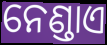
ନେଣ୍ଡାଏ